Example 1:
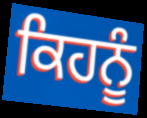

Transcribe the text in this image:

ਕਿਹਨੂੰ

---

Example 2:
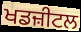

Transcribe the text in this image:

ਖਡਜ਼ੀਟਲ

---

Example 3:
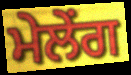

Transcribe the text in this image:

ਮੇਲੇਂਗ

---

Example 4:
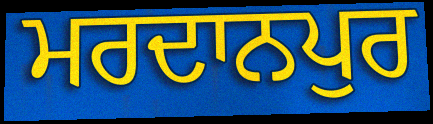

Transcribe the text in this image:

ਮਰਦਾਨਪੁਰ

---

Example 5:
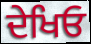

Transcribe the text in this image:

ਦੇਖਿਓ